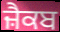
ਜ਼ੈਕਬ